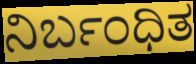
ನಿರ್ಬಂಧಿತ